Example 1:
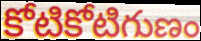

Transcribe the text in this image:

కోటికోటిగుణం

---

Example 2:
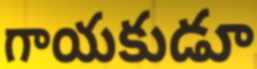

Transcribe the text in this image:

గాయకుడూ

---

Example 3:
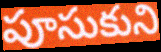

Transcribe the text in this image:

పూసుకుని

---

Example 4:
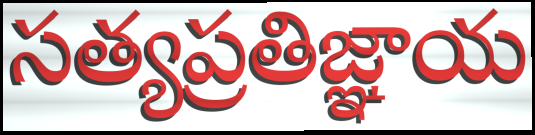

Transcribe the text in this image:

సత్యప్రతిజ్ఞాయ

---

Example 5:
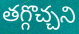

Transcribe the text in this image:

తగ్గొచ్చని